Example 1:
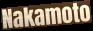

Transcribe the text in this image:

Nakamoto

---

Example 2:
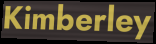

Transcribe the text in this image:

Kimberley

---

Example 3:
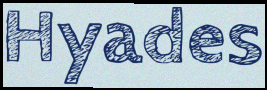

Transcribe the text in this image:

Hyades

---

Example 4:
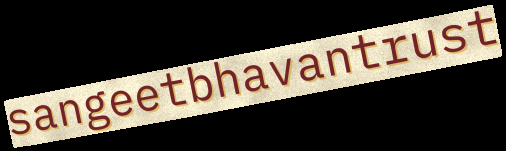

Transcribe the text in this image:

sangeetbhavantrust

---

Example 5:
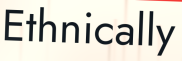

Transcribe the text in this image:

Ethnically